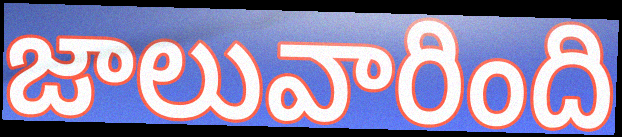
జాలువారింది